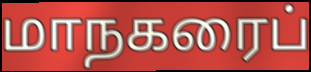
மாநகரைப்